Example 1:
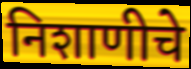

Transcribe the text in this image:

निशाणीचे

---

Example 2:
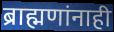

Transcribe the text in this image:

ब्राह्मणांनाही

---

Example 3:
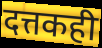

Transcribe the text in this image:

दत्तकही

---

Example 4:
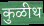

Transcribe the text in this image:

कुळीथ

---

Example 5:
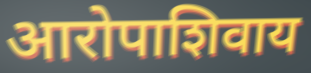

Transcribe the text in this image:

आरोपाशिवाय